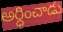
అర్ధించాడు